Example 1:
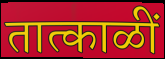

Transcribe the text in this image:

तात्काळीं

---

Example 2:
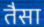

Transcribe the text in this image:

तैसा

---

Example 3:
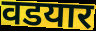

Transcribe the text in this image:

वडयार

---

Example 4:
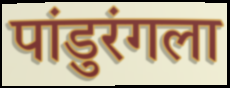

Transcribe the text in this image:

पांडुरंगला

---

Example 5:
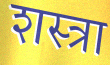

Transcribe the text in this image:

शस्त्रा